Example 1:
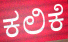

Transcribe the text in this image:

ಕಲಿಕೆ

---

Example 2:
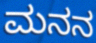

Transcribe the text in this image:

ಮನನ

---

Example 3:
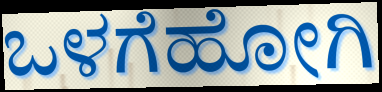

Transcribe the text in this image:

ಒಳಗೆಹೋಗಿ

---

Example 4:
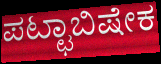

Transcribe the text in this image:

ಪಟ್ಟಾಬಿಷೇಕ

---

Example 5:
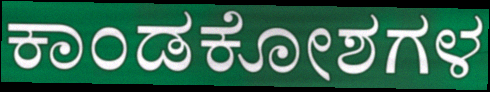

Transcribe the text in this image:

ಕಾಂಡಕೋಶಗಳ